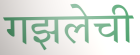
गझलेची